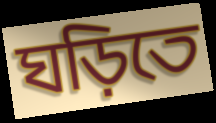
ঘড়িতে